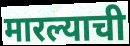
मारल्याची